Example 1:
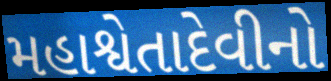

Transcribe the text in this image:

મહાશ્વેતાદેવીનો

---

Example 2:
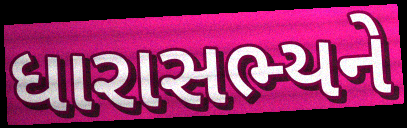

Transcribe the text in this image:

ધારાસભ્યને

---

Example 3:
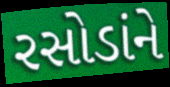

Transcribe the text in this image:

રસોડાંને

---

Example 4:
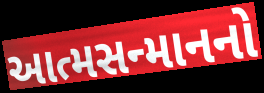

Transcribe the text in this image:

આત્મસન્માનનો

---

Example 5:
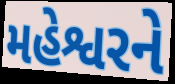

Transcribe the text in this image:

મહેશ્વરને